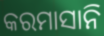
କରମାସାନି